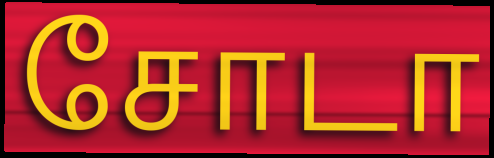
சோடா